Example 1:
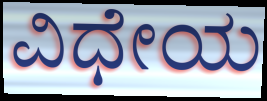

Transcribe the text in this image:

ವಿಧೇಯ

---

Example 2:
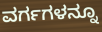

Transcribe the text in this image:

ವರ್ಗಗಳನ್ನೂ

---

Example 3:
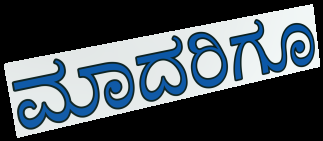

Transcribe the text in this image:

ಮಾದರಿಗೂ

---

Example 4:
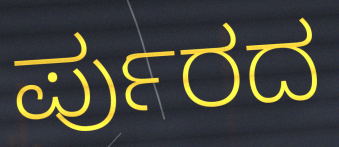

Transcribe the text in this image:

ರ್ಪುರದ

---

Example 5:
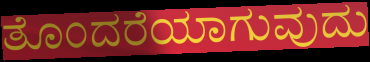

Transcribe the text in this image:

ತೊಂದರೆಯಾಗುವುದು